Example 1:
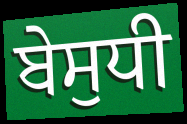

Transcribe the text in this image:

ਬੇਸੁਧੀ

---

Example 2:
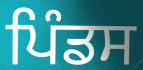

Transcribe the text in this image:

ਪਿੰਡਸ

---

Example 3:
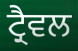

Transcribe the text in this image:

ਟ੍ਰੈਵਲ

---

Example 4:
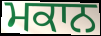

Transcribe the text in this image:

ਮਕਾਨ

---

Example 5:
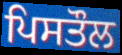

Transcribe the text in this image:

ਪਿਸਤੌਲ